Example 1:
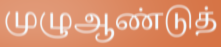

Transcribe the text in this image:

முழுஆண்டுத்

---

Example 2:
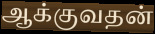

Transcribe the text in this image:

ஆக்குவதன்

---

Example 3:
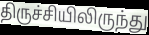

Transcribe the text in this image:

திருச்சியிலிருந்து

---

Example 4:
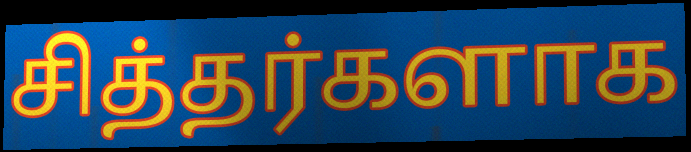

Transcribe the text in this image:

சித்தர்களாக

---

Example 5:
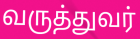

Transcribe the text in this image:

வருத்துவர்